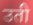
उती